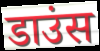
डाउंस